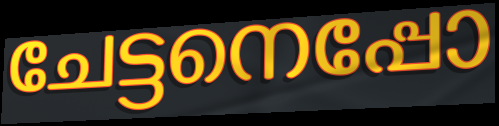
ചേട്ടനെപ്പോ